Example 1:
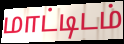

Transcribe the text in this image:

மாட்டிடம்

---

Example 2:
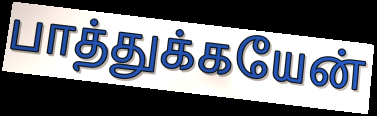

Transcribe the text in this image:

பாத்துக்கயேன்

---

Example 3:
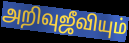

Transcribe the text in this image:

அறிவுஜீவியும்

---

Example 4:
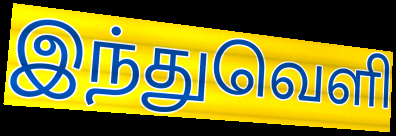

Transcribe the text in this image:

இந்துவெளி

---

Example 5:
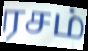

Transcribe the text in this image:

ரசம்